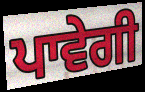
ਪਾਵੇਗੀ